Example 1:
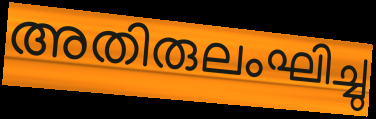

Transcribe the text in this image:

അതിരുലംഘിച്ചു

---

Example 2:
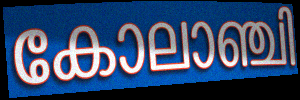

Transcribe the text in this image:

കോലാഞ്ചി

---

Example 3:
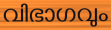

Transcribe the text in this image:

വിഭാഗവും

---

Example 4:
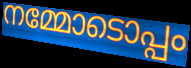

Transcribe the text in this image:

നമ്മോടൊപ്പം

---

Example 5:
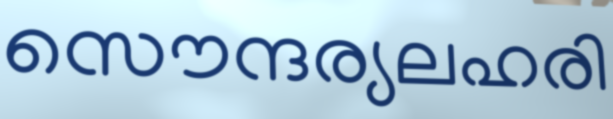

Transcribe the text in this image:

സൌന്ദര്യലഹരി